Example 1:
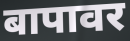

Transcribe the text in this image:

बापावर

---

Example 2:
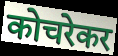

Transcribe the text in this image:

कोचरेकर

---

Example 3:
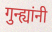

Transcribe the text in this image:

गुन्ह्यांनी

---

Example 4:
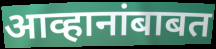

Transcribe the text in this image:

आव्हानांबाबत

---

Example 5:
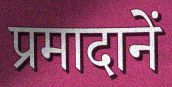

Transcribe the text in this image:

प्रमादानें